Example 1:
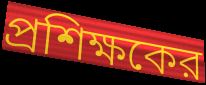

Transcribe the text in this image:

প্রশিক্ষকের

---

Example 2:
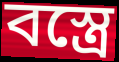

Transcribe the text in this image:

বস্ত্রে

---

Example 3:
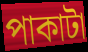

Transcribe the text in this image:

পাকাটা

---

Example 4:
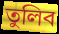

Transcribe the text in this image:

তুলিব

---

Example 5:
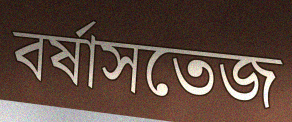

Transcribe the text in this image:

বর্ষাসতেজ